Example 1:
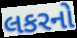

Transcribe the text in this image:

લકરનો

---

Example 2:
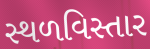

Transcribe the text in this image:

સ્થળવિસ્તાર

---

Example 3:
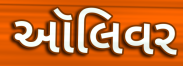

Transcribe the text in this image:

ઑલિવર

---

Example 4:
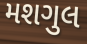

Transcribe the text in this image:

મશગુલ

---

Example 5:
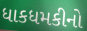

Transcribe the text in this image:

ધાકધમકીનો